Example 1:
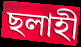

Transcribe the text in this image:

ছলাহী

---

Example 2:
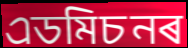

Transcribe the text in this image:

এডমিচনৰ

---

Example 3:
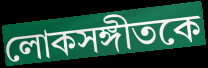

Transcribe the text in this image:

লোকসঙ্গীতকে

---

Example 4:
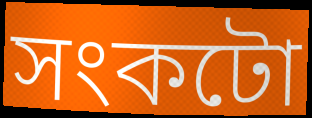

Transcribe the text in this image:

সংকটো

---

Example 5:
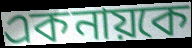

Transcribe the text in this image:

একনায়কে